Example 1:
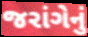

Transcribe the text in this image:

જરાંગેનું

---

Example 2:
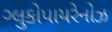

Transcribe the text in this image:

ગ્લુકોપાયરેનોઝ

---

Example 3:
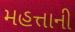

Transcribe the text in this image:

મહત્તાની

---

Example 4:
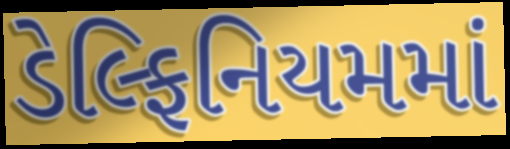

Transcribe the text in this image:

ડેલ્ફિનિયમમાં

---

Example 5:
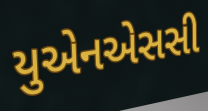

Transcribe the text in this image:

યુએનએસસી